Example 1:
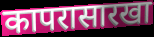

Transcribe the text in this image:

कापरासारखा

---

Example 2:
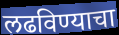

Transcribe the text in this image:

लढविण्याचा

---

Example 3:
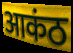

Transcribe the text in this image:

आकंठ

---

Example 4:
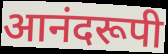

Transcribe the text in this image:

आनंदरूपी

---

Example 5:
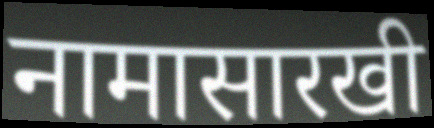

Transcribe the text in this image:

नामासारखी